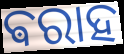
ଵରାହ